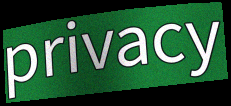
privacy